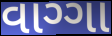
વાગ્ગા